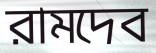
রামদেব